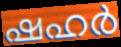
ഷഹർ